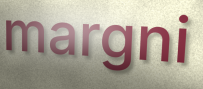
margni